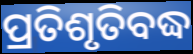
ପ୍ରତିଶୃତିବଦ୍ଧ